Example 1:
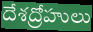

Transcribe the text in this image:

దేశద్రోహులు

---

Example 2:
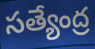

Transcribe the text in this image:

సత్యేంద్ర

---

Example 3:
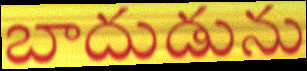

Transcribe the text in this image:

బాదుడును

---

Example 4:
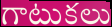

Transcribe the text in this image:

గాటుకలు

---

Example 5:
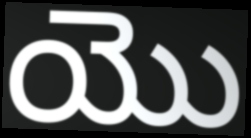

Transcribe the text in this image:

యొ